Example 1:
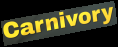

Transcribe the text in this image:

Carnivory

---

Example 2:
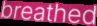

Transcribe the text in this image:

breathed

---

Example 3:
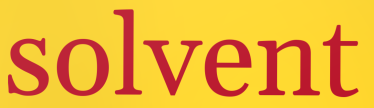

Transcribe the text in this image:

solvent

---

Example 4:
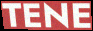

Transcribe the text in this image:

TENE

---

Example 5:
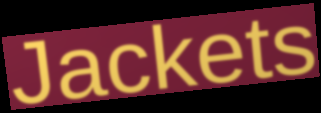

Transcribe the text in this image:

Jackets